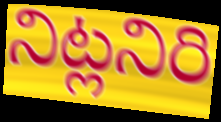
నిట్లనిరి